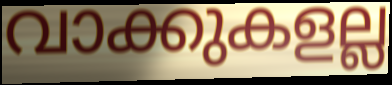
വാക്കുകളല്ല